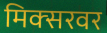
मिक्‍सरवर